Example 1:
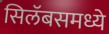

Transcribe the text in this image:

सिलॅबसमध्ये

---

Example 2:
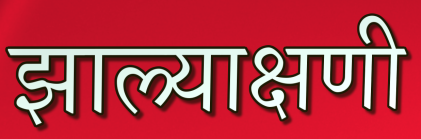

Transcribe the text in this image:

झाल्याक्षणी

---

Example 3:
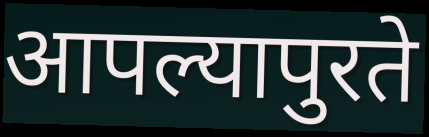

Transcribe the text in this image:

आपल्यापुरते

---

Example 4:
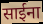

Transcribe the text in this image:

साईना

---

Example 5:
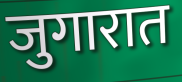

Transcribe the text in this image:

जुगारात